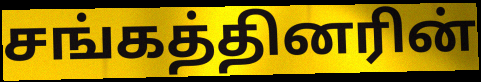
சங்கத்தினரின்